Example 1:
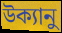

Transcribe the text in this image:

উক্যানু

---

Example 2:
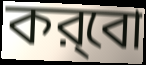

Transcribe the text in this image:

কর্‌বো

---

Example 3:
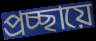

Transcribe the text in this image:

প্রচ্ছায়ে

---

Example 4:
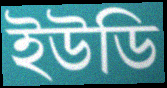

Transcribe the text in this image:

ইউডি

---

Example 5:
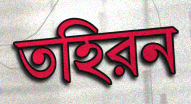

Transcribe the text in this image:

তহিরন